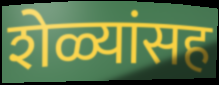
शेळ्यांसह